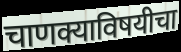
चाणक्याविषयीचा